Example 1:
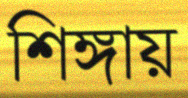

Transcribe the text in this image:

শিঙ্গায়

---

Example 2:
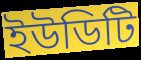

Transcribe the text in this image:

ইউডিটি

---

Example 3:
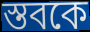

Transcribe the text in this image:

স্তবকে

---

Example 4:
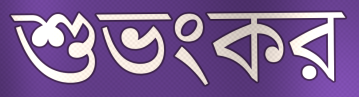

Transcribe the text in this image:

শুভংকর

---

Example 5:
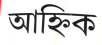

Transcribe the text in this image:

আহ্নিক